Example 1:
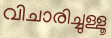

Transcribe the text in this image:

വിചാരിച്ചുള്ളൂ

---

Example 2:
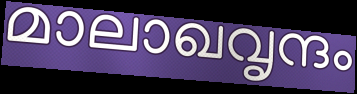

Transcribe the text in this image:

മാലാഖവൃന്ദം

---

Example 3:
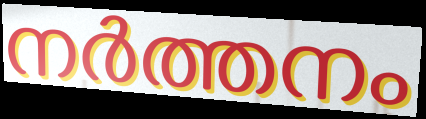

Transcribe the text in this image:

നർത്തനം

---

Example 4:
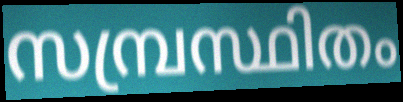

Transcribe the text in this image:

സമ്പ്രസ്ഥിതം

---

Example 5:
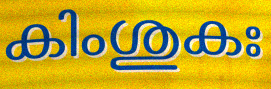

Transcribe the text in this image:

കിംശുകഃ